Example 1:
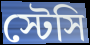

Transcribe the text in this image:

স্টেসি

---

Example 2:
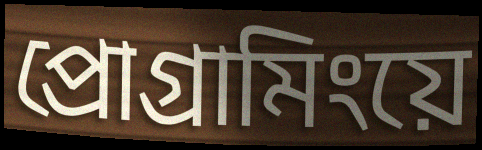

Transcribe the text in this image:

প্রোগ্রামিংয়ে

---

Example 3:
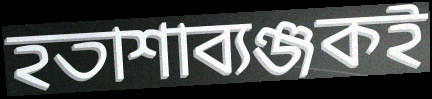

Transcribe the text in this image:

হতাশাব্যঞ্জকই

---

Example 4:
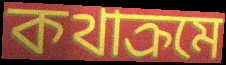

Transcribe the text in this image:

কথাক্রমে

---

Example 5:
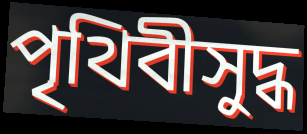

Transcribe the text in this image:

পৃথিবীসুদ্ধ